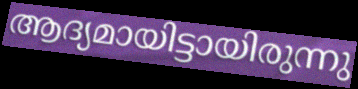
ആദ്യമായിട്ടായിരുന്നു